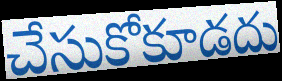
చేసుకోకూడదు